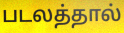
படலத்தால்